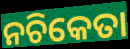
ନଚିକେତା